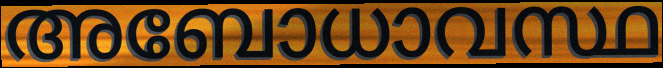
അബോധാവസ്ഥ